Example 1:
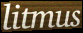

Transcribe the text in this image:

litmus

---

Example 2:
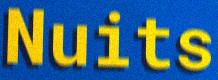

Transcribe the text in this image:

Nuits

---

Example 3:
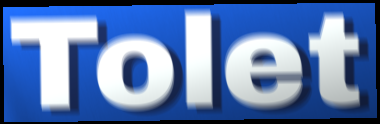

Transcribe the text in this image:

Tolet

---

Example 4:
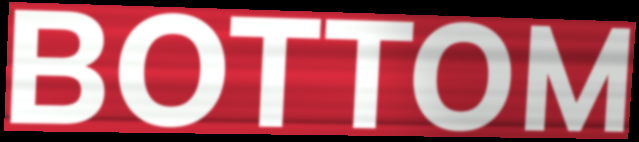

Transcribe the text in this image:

BOTTOM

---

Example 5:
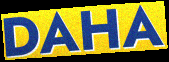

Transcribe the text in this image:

DAHA